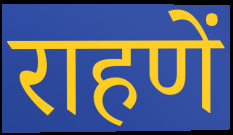
राहणें